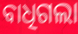
ବାଧିଗଲା